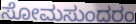
ಸೋಮಸುಂದರಂ